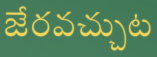
జేరవచ్చుట